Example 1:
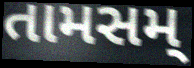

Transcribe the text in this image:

તામસમ્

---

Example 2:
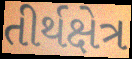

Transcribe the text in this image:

તીર્થક્ષેત્ર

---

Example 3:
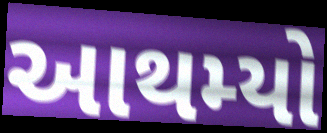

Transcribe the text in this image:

આથમ્યો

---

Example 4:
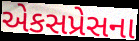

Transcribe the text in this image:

એકસપ્રેસના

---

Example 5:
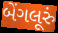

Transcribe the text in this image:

બેંગલૂરું